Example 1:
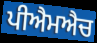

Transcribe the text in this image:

ਪੀਐਮਐਚ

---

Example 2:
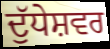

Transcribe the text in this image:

ਦੁੱਧੇਸ਼ਵਰ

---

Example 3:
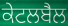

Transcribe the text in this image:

ਕੇਟਲਬੈਲ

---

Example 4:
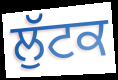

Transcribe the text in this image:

ਲੁੱਟਕ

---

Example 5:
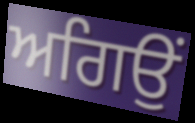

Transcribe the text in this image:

ਅਗਿਉਂ